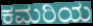
ಕಮರಿಯ